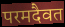
परमदैवत